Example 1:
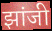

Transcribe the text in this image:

झांजी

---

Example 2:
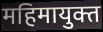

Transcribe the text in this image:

महिमायुक्‍त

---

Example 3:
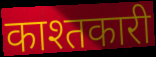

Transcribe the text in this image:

काश्तकारी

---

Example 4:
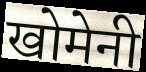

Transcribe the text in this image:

खोमेनी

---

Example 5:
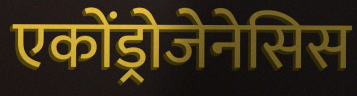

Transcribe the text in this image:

एकोंड्रोजेनेसिस